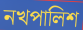
নখপালিশ